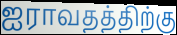
ஐராவதத்திற்கு